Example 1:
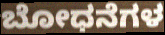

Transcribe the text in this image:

ಬೋಧನೆಗಳ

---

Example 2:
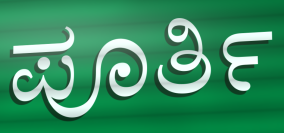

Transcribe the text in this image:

ಪೂರ್ತಿ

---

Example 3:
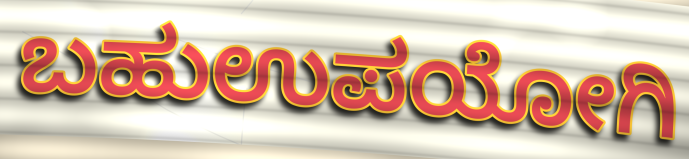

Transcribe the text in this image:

ಬಹುಉಪಯೋಗಿ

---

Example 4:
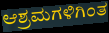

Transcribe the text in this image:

ಆಶ್ರಮಗಳಿಗಿಂತ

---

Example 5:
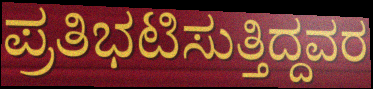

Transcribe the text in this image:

ಪ್ರತಿಭಟಿಸುತ್ತಿದ್ದವರ